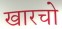
खारचो